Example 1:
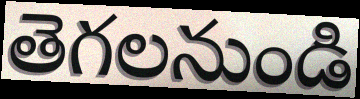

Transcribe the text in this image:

తెగలనుండి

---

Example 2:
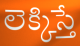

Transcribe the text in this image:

లెక్కిస్తే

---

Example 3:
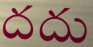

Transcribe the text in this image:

దదు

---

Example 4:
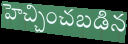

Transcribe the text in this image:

హెచ్చించబడిన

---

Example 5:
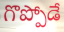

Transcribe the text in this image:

గొప్పోడే